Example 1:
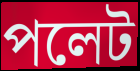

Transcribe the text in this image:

পলেট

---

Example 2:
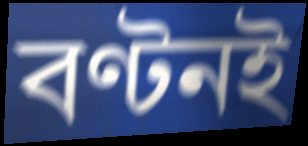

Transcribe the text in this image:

বণ্টনই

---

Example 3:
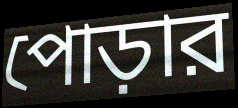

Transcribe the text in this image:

পোড়ার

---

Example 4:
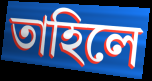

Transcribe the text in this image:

তাহিলে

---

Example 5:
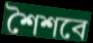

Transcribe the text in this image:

শৈশবে